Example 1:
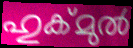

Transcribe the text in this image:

ഹുക്മുൽ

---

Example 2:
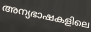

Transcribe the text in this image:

അന്യഭാഷകളിലെ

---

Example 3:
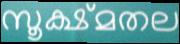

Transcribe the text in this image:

സൂക്ഷ്മതല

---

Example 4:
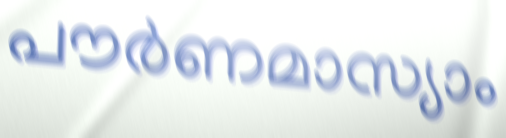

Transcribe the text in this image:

പൗർണമാസ്യാം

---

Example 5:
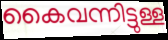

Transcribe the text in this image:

കൈവന്നിട്ടുള്ള